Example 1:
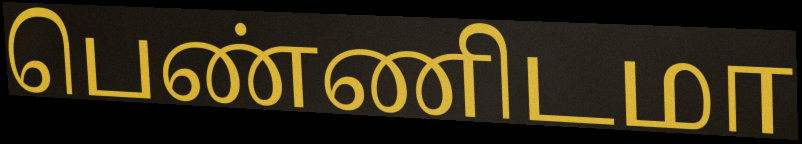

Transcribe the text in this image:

பெண்ணிடமா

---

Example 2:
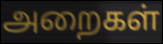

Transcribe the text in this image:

அறைகள்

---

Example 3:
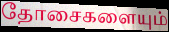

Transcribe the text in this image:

தோசைகளையும்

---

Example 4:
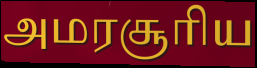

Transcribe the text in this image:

அமரசூரிய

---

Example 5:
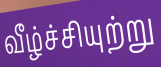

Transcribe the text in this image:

வீழ்ச்சியுற்று